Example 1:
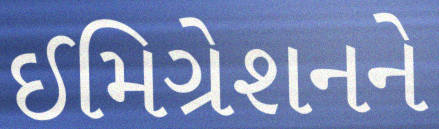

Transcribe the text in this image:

ઈમિગ્રેશનને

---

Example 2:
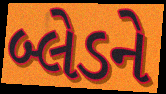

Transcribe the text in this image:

બ્લેડને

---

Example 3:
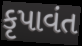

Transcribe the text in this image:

કૃપાવંત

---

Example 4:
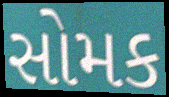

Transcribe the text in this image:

સોમક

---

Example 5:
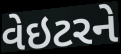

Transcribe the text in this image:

વેઇટરને